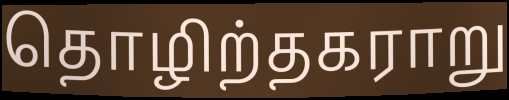
தொழிற்தகராறு